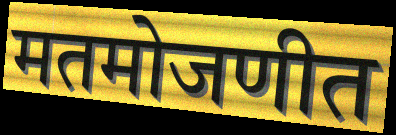
मतमोजणीत